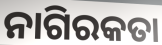
ନାଗିରକତା